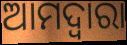
ଆମଦ୍ୱାରା